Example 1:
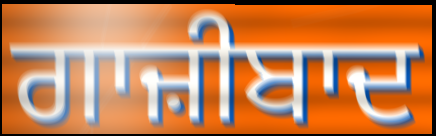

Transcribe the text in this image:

ਗਾਜ਼ੀਬਾਦ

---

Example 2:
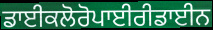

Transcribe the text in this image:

ਡਾਈਕਲੋਰੋਪਾਈਰੀਡਾਈਨ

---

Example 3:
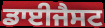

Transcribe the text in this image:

ਡਾਈਜੈਸਟ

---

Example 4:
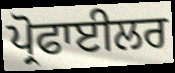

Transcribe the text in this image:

ਪ੍ਰੋਫਾਈਲਰ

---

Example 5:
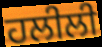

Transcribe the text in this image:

ਹਲੀਲੀ